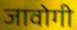
जावोगी